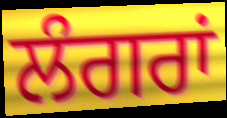
ਲੰਗਰਾਂ